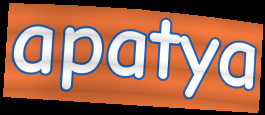
apatya